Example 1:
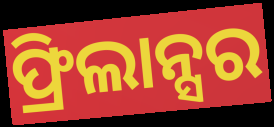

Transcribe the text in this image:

ଫ୍ରିଲାନ୍ସର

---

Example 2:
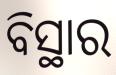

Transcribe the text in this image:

ବିସ୍ଥାର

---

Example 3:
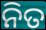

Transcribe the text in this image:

ନିତ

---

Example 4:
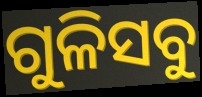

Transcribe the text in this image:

ଗୁଳିସବୁ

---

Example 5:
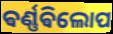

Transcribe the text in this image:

ଵର୍ଣ୍ଣଵିଲୋପ